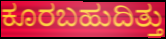
ಕೂರಬಹುದಿತ್ತು